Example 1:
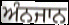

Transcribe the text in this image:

ਅੰਨਜਾਨ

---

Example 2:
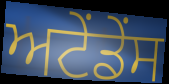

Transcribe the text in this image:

ਅਟੇਂਡੇਂਸ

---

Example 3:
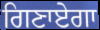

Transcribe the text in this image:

ਗਿਣਾਏਗਾ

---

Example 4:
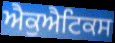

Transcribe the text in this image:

ਐਕੁਐਟਿਕਸ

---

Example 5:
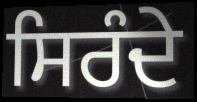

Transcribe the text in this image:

ਸਿਰੰਦੇ